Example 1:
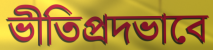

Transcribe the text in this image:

ভীতিপ্রদভাবে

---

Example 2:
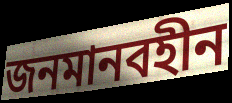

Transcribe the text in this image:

জনমানবহীন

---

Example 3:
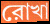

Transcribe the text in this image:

রোখা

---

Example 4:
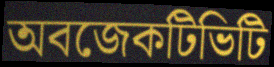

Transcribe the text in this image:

অবজেকটিভিটি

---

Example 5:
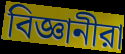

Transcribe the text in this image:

বিজ্ঞানীরা